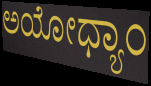
ಅಯೋಧ್ಯಾಂ